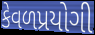
કેવળપ્રયોગી